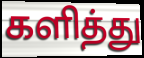
களித்து